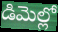
డిమెల్లో